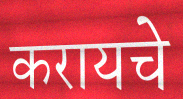
करायचे